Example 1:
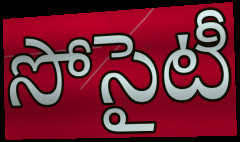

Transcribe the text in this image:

సోసైటీ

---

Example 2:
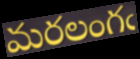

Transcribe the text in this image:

మరలంగఁ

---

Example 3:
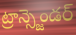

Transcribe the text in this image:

ట్రాన్స్జెండర్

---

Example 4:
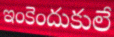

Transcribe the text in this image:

ఇంకెందుకులే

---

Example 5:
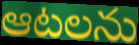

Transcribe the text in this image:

ఆటలను